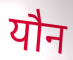
यौन